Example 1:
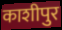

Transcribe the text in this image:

काशीपुर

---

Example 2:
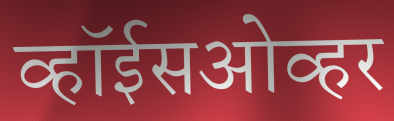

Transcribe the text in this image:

व्हॉईसओव्हर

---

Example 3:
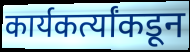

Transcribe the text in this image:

कार्यकर्त्यांकडून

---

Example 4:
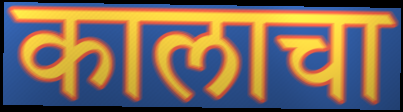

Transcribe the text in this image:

कालाचा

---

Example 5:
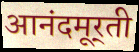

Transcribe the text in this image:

आनंदमूर्ती